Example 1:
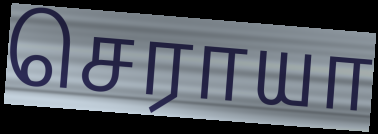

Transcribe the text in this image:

செராயா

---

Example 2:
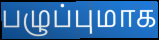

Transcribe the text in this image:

பழுப்புமாக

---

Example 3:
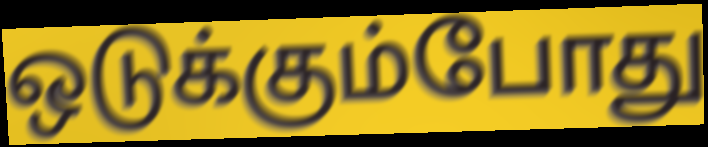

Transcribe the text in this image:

ஒடுக்கும்போது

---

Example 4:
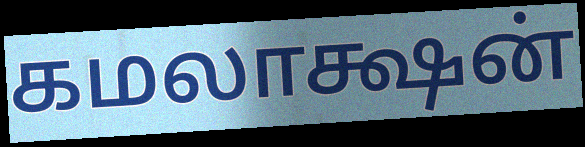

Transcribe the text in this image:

கமலாக்ஷன்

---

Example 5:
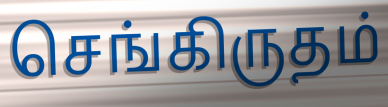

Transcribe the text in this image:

செங்கிருதம்